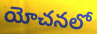
యోచనలో